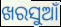
ଖରସୁଆଁ